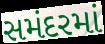
સમંદરમાં